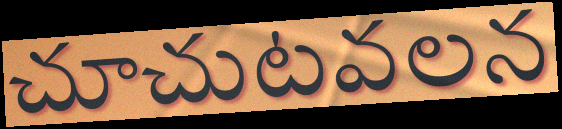
చూచుటవలన